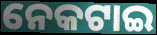
ନେକଟାଇ